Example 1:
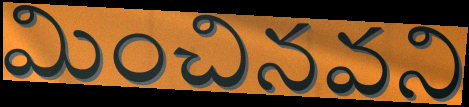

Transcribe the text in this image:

మించినవని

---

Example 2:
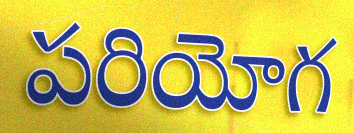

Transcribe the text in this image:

పరియోగ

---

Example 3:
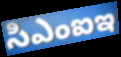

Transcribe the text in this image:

సిఎంఐఇ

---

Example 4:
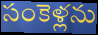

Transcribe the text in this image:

సంకెళ్లను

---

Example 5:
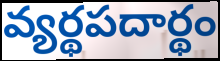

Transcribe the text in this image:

వ్యర్థపదార్థం